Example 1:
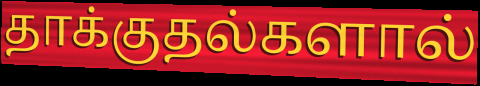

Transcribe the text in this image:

தாக்குதல்களால்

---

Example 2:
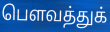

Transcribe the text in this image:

பௌவத்துக்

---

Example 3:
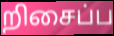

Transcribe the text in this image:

றிசைப்ப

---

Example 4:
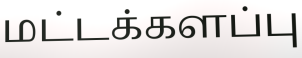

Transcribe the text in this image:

மட்டக்களப்பு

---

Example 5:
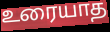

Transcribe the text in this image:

உரையாத